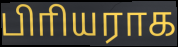
பிரியராக